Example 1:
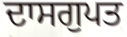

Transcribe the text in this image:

ਦਾਸਗੁਪਤ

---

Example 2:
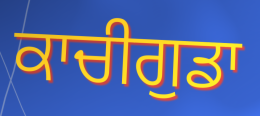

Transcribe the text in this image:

ਕਾਚੀਗੁਡਾ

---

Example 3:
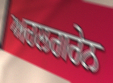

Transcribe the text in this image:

ਅਹਲਗਰੇਨ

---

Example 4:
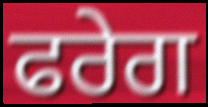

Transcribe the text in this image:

ਫਰੇਗ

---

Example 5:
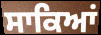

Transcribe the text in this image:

ਸਾਕਿਆਂ